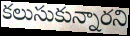
కలుసుకున్నారని